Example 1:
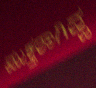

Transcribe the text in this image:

ಮುಕ್ತರಾಗಿದ್ದ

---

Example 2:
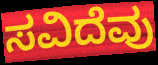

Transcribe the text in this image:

ಸವಿದೆವು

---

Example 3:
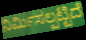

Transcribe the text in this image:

ನಿರ್ಮಿಸಲ್ಪಟ್ಟಿದೆ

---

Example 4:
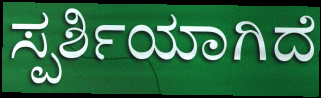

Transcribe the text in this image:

ಸ್ಪರ್ಶಿಯಾಗಿದೆ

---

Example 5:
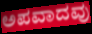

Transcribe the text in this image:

ಅಪವಾದವು